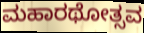
ಮಹಾರಥೋತ್ಸವ